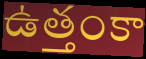
ఉత్తంకా